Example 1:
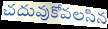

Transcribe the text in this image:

చదువుకోవలసిన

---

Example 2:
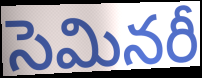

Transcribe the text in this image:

సెమినరీ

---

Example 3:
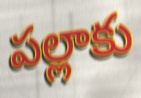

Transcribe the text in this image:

పల్లాకు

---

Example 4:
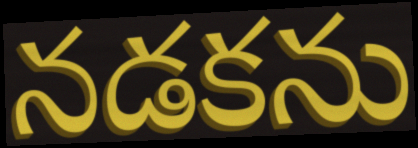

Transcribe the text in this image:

నడకను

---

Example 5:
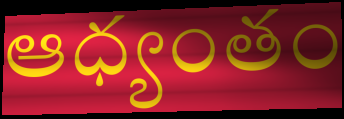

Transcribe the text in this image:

ఆధ్యంతం